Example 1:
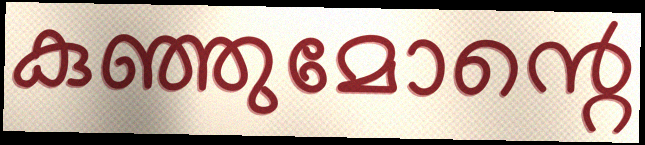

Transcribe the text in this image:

കുഞ്ഞുമോന്റെ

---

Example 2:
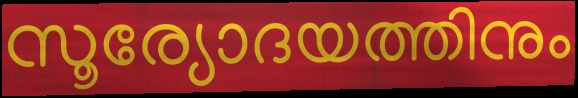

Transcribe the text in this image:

സൂര്യോദയത്തിനും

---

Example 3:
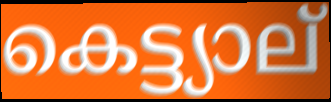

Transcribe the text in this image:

കെട്ട്യാല്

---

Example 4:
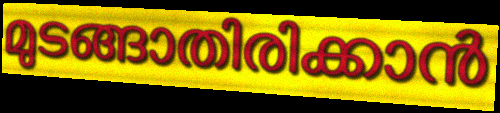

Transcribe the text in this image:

മുടങ്ങാതിരിക്കാൻ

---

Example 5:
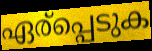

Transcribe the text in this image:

ഏര്പ്പെടുക